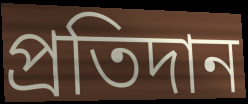
প্রতিদান